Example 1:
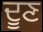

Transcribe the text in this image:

ਦੂਣ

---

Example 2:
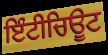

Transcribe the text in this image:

ਇੰਟੀਚਿਊਟ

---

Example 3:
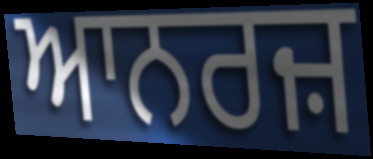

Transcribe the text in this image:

ਆਨਰਜ਼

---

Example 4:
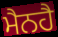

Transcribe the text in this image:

ਮੈਨਹੈ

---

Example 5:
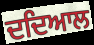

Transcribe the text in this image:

ਦਦਿਆਲ